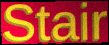
Stair